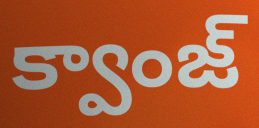
క్వాంజ్